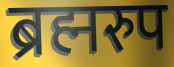
ब्रह्मरुप